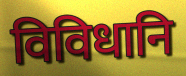
विविधानि